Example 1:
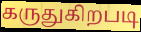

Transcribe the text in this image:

கருதுகிறபடி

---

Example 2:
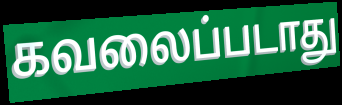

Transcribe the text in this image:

கவலைப்படாது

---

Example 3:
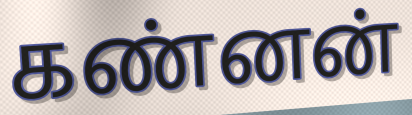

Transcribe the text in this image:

கண்னன்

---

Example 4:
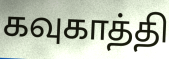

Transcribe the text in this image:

கவுகாத்தி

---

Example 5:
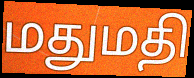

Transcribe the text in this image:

மதுமதி